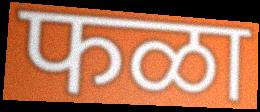
फळा